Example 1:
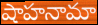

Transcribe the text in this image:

షాహనామా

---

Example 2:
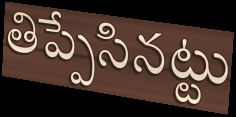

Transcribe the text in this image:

తిప్పేసినట్టు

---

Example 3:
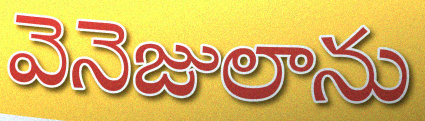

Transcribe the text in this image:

వెనెజులాను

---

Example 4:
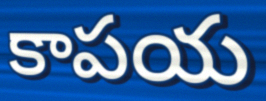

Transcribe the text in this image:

కాపయ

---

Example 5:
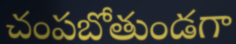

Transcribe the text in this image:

చంపబోతుండగా